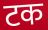
टक